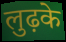
लुढ़के